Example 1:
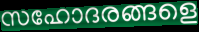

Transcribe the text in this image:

സഹോദരങ്ങളെ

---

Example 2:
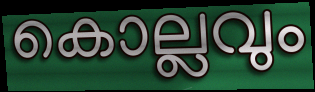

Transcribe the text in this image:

കൊല്ലവും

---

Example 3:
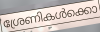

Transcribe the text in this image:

ശ്രേണികൾക്കൊ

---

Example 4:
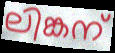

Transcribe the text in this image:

ലിങ്കന്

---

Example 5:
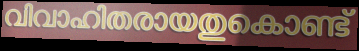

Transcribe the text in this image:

വിവാഹിതരായതുകൊണ്ട്